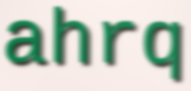
ahrq